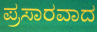
ಪ್ರಸಾರವಾದ